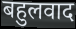
बहुलवाद